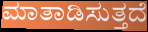
ಮಾತಾಡಿಸುತ್ತದೆ